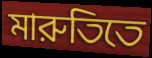
মারুতিতে